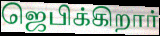
ஜெபிக்கிறார்